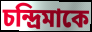
চন্দ্রিমাকে